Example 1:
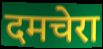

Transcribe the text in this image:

दमचेरा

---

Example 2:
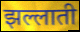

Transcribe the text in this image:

झल्लाती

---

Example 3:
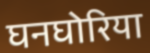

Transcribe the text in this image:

घनघोरिया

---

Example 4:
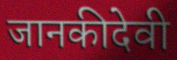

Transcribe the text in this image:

जानकीदेवी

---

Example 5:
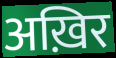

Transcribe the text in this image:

अख़िर